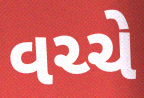
વચ્ચે